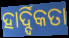
ହାର୍ଦ୍ଦିକତା